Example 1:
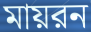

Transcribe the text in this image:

মায়রন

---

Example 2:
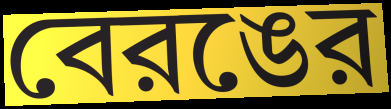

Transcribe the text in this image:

বেরঙের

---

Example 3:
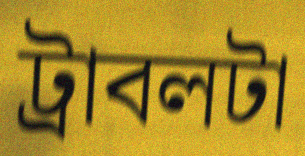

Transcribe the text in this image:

ট্রাবলটা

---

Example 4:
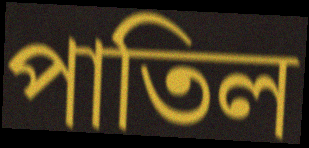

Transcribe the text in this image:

পাতিল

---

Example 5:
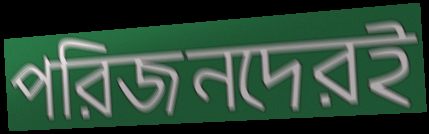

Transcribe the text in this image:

পরিজনদেরই